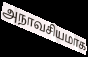
அநாவசியமாக